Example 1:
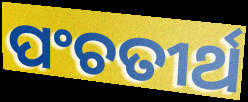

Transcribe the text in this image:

ପଂଚତୀର୍ଥ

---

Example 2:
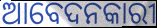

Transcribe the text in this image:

ଆବେଦନକାରୀ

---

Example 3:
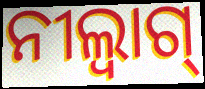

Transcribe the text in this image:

ନୀଲ୍ବାଗ୍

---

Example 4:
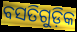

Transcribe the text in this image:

ବସତିଗୁଡ଼ିକ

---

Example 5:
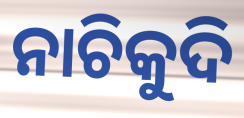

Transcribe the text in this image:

ନାଚିକୁଦି